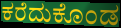
ಕರೆದುಕೊಂಡ